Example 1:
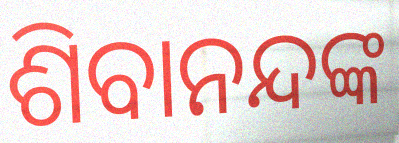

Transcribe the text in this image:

ଶିବାନନ୍ଦଙ୍କ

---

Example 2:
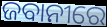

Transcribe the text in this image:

ଜବାନୀରେ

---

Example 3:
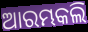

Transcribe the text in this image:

ଆରମ୍ଭକଲି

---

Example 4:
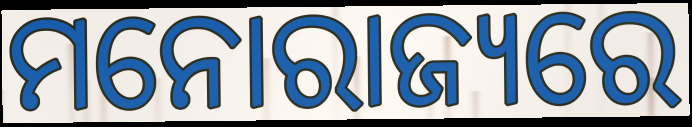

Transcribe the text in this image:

ମନୋରାଜ୍ୟରେ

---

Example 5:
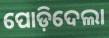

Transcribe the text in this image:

ପୋଡ଼ିଦେଲା